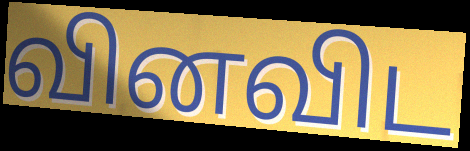
வினவிட